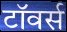
टॉवर्स